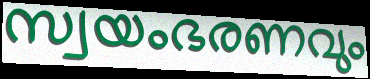
സ്വയംഭരണവും